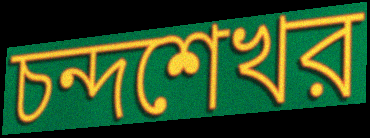
চন্দশেখর